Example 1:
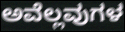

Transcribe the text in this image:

ಅವೆಲ್ಲವುಗಳ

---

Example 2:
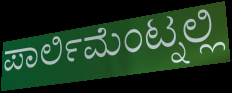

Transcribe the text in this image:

ಪಾರ್ಲಿಮೆಂಟ್ನಲ್ಲಿ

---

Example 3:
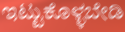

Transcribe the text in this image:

ಇಟ್ಟುಕೊಳ್ಳಬೇಡಿ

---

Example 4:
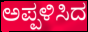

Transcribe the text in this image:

ಅಪ್ಪಳಿಸಿದ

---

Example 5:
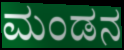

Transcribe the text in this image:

ಮಂಡನ